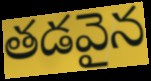
తడవైన